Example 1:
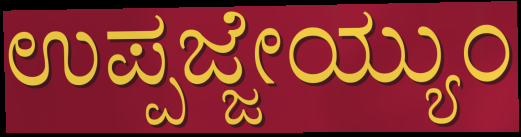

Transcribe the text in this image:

ಉಪ್ಪಜ್ಜೇಯ್ಯುಂ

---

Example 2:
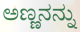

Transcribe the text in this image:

ಅಣ್ಣನನ್ನು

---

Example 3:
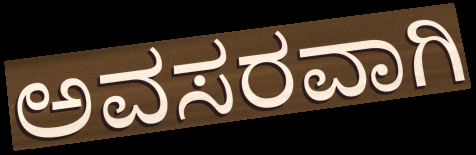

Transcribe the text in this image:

ಅವಸರವಾಗಿ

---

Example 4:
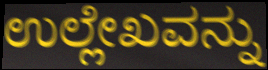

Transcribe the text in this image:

ಉಲ್ಲೇಖವನ್ನು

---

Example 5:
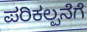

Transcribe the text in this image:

ಪರಿಕಲ್ಪನೆಗೆ